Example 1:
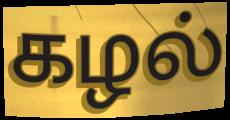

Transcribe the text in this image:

கழல்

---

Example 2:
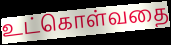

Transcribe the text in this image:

உட்கொள்வதை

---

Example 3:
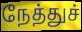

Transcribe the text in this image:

நேத்துச்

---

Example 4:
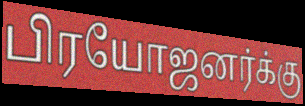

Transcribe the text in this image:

பிரயோஜனர்க்கு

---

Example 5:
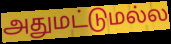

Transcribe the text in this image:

அதுமட்டுமல்ல